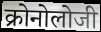
क्रोनोलोजी